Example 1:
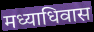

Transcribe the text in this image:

मध्याधिवास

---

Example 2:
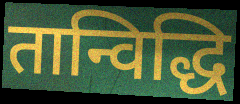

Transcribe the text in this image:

तान्विद्धि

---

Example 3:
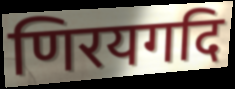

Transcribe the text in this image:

णिरयगदि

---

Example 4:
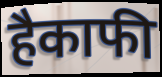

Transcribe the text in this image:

हैकाफी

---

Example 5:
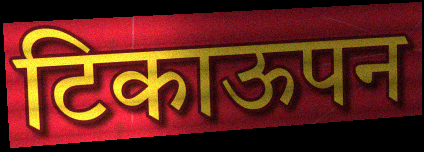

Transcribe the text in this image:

टिकाऊपन